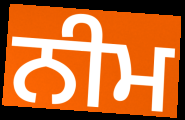
ਨੀਮ